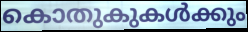
കൊതുകുകൾക്കും